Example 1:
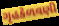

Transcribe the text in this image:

ગૃહકેળવણી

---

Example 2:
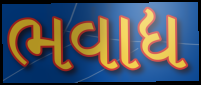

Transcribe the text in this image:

ભવાદ્ય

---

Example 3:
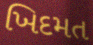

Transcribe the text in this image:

ખિદમત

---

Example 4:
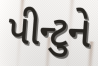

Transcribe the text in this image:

પીન્ટુને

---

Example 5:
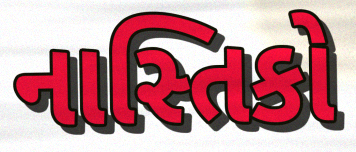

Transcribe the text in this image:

નાસ્તિકો